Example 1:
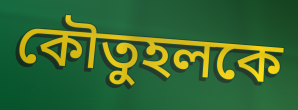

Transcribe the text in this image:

কৌতুহলকে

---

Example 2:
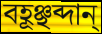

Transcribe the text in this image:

বহূঞ্ছব্দান্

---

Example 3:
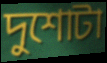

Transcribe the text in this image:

দুশোটা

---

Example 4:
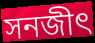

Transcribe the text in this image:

সনজীৎ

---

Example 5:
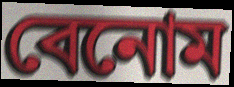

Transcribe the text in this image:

বেনোম